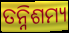
ତନ୍ନିଶମ୍ୟ